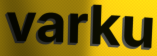
varku